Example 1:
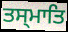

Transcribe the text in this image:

ਤਸ੍ਮਾਤਿ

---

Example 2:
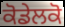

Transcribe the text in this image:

ਕੋਡੇਲਕੋ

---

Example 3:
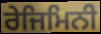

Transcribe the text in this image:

ਰੇਜਿਮਿਨੀ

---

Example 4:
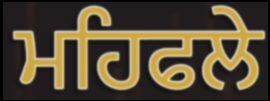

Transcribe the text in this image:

ਮਹਿਫਲੇ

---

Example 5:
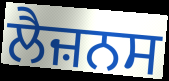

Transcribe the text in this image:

ਲੈਜ਼ਨਸ